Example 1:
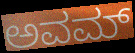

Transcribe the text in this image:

ಅವಮ್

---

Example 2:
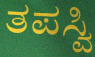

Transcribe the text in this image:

ತಪಸ್ವಿ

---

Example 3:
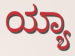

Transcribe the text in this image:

ಯ್ಯಾ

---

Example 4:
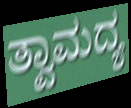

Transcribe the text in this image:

ತ್ವಾಮದ್ಯ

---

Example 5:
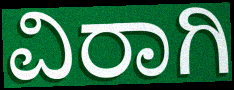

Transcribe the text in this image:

ವಿರಾಗಿ